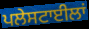
ਪਲੇਸਟਾਈਲਾਂ